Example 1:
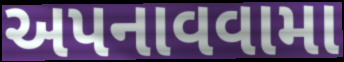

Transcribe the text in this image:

અપનાવવામા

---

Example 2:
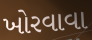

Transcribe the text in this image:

ખોરવાવા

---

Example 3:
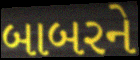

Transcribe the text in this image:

બાબરને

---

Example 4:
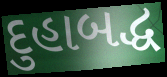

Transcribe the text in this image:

દુહાબદ્ધ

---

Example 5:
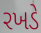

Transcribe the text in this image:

રખડે